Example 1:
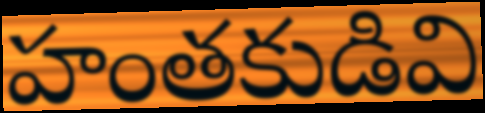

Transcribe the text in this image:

హంతకుడివి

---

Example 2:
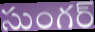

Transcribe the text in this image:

సుంగర్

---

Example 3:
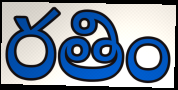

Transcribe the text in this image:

రతిం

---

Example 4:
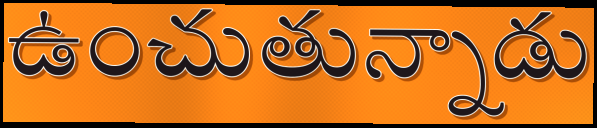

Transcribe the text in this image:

ఉంచుతున్నాడు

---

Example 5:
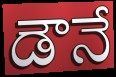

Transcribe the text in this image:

డౌనే